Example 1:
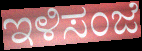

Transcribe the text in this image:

ಇಳಿಸಂಜೆ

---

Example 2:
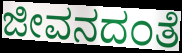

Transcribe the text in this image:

ಜೀವನದಂತೆ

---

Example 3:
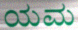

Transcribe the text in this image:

ಯಮ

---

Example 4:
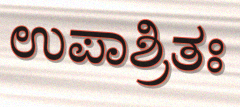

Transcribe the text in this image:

ಉಪಾಶ್ರಿತಃ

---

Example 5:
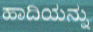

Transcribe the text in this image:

ಹಾದಿಯನ್ನು